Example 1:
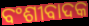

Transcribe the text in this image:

ବଂଶୀବାଦକ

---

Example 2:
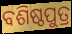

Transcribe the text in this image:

ବଶିଷ୍ଠପୁତ୍ର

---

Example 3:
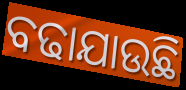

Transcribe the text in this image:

ବଢାଯାଉଛି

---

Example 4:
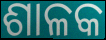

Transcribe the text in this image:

ଶାଳକ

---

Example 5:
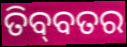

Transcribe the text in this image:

ତିବ୍‌ବତର